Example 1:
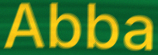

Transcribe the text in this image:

Abba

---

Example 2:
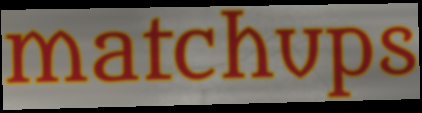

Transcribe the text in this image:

matchups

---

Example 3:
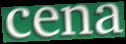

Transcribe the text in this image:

cena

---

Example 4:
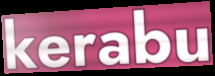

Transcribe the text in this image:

kerabu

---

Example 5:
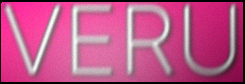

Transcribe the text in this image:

VERU